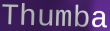
Thumba